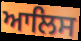
ਆਲਿਸ